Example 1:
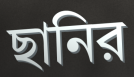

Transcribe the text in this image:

ছানির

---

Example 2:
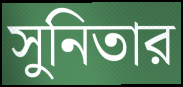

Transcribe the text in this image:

সুনিতার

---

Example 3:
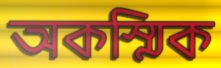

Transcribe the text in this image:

অকস্মিক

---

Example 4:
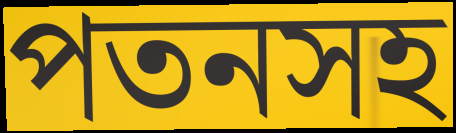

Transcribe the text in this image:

পতনসহ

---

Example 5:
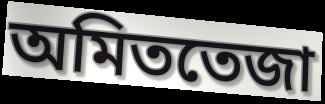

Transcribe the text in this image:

অমিততেজা